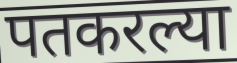
पतकरल्या